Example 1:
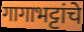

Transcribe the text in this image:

गागाभट्टांचे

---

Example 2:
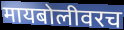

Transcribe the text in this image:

मायबोलीवरच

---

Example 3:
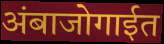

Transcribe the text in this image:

अंबाजोगाईत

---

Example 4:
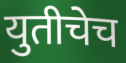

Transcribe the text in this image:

युतीचेच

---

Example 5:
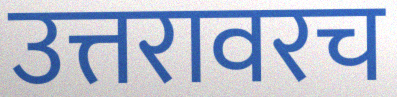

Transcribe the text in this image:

उत्तरावरच